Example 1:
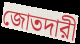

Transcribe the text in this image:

জোতদারী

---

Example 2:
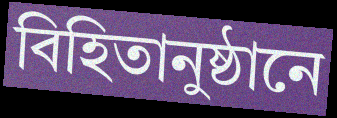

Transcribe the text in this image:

বিহিতানুষ্ঠানে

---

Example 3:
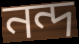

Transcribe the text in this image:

নন্দ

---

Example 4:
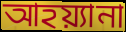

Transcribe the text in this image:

আহয়্যানা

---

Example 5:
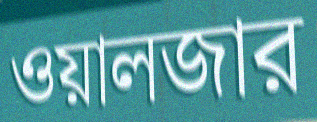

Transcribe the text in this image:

ওয়ালজার